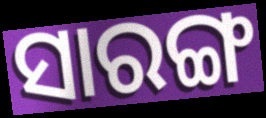
ସାରଙ୍ଗ